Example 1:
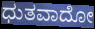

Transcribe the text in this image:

ಧುತವಾದೋ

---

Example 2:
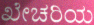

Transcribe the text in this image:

ಖೇಚರಿಯ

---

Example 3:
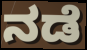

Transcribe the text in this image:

ನಡೆ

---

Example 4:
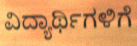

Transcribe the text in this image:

ವಿದ್ಯಾರ್ಥಿಗಳಿಗೆ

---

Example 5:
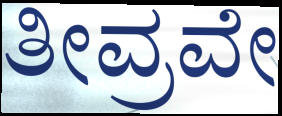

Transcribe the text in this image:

ತೀವ್ರವೇ